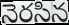
నెరసిన